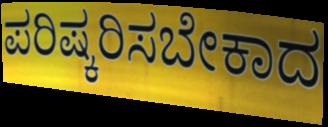
ಪರಿಷ್ಕರಿಸಬೇಕಾದ